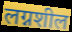
लग्नशील